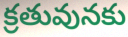
క్రతువునకు